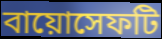
বায়োসেফটি